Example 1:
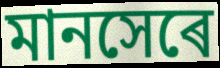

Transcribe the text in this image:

মানসেৰে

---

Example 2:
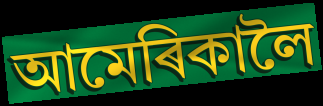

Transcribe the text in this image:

আমেৰিকালৈ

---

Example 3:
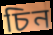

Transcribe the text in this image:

চিন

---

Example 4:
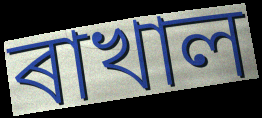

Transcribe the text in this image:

ৰাখাল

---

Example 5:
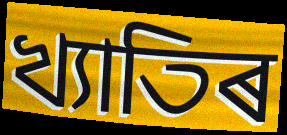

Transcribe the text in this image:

খ্যাতিৰ